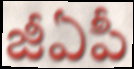
జీఏపీ